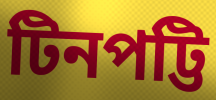
টিনপট্টি